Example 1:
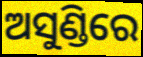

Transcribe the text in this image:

ଅସୁଣ୍ଡିରେ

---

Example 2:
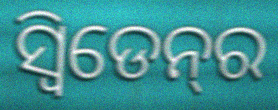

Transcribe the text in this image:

ସ୍ୱିଡେନ୍‌ର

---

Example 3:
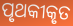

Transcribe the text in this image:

ପୃଥକୀକୃତ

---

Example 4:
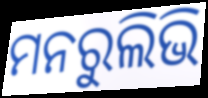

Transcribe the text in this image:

ମନରୁଲିଭି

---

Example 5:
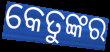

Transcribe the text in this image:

କେତୁଙ୍କର